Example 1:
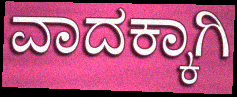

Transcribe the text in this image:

ವಾದಕ್ಕಾಗಿ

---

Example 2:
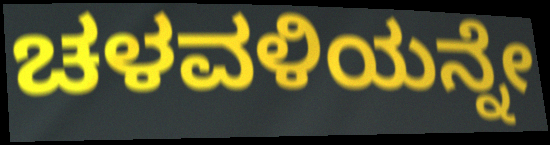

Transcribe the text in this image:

ಚಳವಳಿಯನ್ನೇ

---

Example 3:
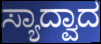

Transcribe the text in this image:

ಸ್ಯಾದ್ವಾದ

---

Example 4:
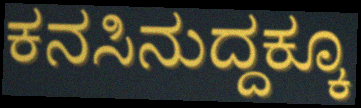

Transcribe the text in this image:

ಕನಸಿನುದ್ದಕ್ಕೂ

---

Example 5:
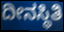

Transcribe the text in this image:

ದೀನಸ್ಥಿತಿ